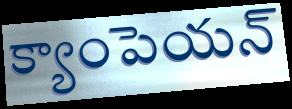
క్యాంపెయన్